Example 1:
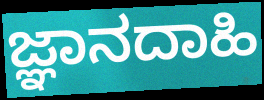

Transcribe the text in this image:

ಜ್ಞಾನದಾಹಿ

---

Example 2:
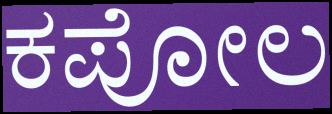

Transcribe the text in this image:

ಕಪೋಲ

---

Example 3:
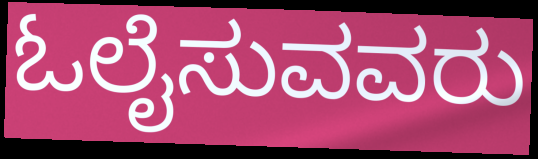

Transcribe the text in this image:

ಓಲೈಸುವವರು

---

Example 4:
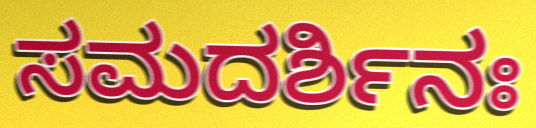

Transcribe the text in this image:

ಸಮದರ್ಶಿನಃ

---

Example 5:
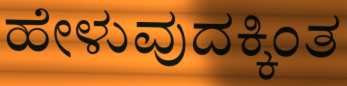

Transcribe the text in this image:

ಹೇಳುವುದಕ್ಕಿಂತ